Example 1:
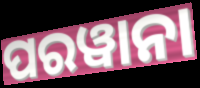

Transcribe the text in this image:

ପରୱାନା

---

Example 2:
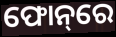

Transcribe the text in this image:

ଫୋନ୍‌ରେ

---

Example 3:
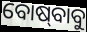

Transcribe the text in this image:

ବୋଷ୍‍ବାବୁ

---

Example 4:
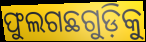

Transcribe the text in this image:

ଫୁଲଗଛଗୁଡ଼ିକୁ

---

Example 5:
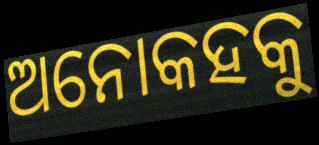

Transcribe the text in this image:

ଅନୋକହକୁ